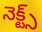
నెక్ట్స్